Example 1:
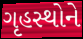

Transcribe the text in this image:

ગૃહસ્થોને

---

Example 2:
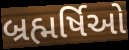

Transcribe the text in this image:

બ્રહ્મર્ષિઓ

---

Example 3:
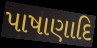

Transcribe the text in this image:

પાષાણાદિ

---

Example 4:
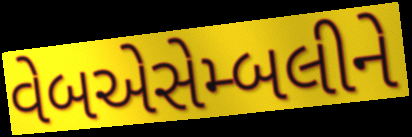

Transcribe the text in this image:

વેબએસેમ્બલીને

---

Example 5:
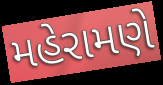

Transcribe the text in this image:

મહેરામણે